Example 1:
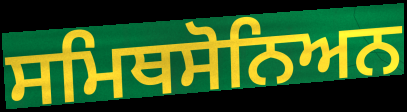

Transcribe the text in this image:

ਸਮਿਥਸੋਨਿਅਨ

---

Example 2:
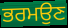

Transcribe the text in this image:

ਭਰਮਉਣ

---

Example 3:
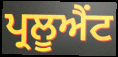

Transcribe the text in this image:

ਪ੍ਰਲੂਐਂਟ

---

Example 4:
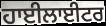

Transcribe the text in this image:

ਹਾਈਲਾਈਟਰ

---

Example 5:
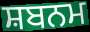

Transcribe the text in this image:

ਸ਼ਬਨਮ